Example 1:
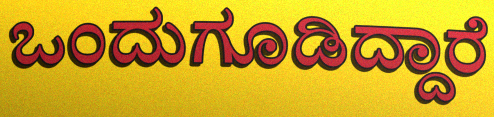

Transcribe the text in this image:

ಒಂದುಗೂಡಿದ್ದಾರೆ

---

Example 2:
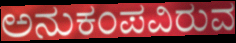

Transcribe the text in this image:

ಅನುಕಂಪವಿರುವ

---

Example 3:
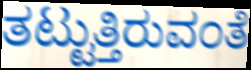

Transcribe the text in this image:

ತಟ್ಟುತ್ತಿರುವಂತೆ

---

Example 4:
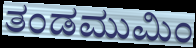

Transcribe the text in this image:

ತಂಡಮುಮಿಂ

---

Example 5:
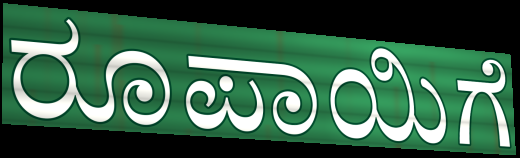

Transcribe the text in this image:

ರೂಪಾಯಿಗೆ